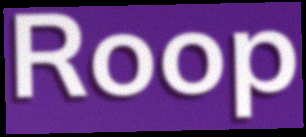
Roop